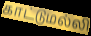
காட்டுமல்லி